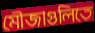
মৌজাগুলিতে